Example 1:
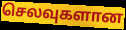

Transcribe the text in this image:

செலவுகளான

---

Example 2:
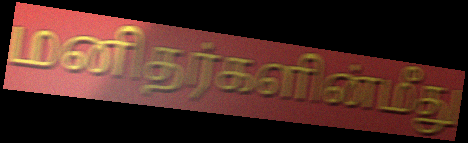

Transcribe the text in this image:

மனிதர்களின்மீது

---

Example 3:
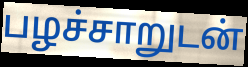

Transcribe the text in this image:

பழச்சாறுடன்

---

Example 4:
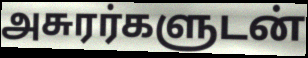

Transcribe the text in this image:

அசுரர்களுடன்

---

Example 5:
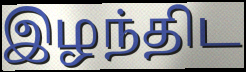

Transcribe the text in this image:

இழந்திட